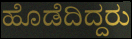
ಹೊಡೆದಿದ್ದರು